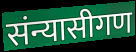
संन्यासीगण